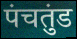
पंचतुंड